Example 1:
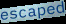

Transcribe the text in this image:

escaped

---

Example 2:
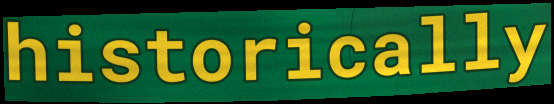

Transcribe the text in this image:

historically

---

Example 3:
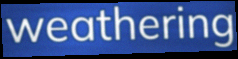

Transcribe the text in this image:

weathering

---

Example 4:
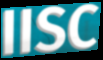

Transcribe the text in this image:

IISC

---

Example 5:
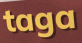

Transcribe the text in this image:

taga